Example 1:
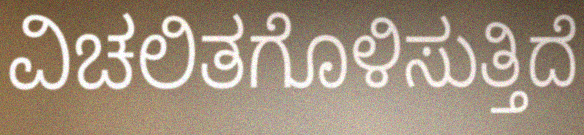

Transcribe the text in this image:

ವಿಚಲಿತಗೊಳಿಸುತ್ತಿದೆ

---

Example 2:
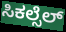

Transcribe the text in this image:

ಸಿಕಲ್ಸೆಲ್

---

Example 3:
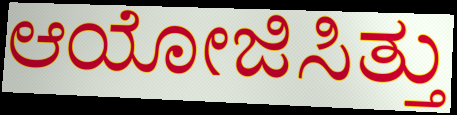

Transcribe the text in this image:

ಆಯೋಜಿಸಿತ್ತು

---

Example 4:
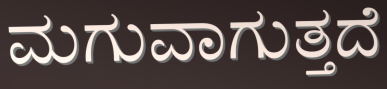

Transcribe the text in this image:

ಮಗುವಾಗುತ್ತದೆ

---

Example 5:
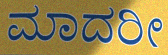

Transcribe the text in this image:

ಮಾದರೀ